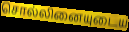
சொல்லினையுடைய